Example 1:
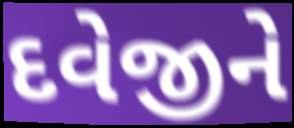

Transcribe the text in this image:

દવેજીને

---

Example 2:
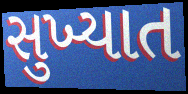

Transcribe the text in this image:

સુખ્યાત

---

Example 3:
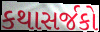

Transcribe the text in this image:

કથાસર્જકો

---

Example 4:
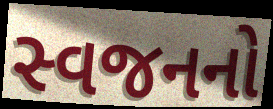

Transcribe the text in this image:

સ્વજનનો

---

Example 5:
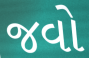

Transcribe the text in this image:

જવો